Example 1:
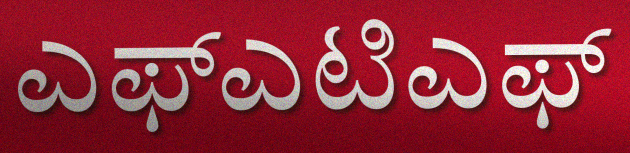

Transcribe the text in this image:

ಎಫ್ಎಟಿಎಫ್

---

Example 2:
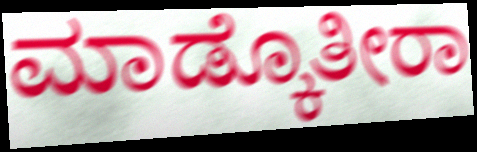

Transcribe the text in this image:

ಮಾಡ್ಕೊತೀರಾ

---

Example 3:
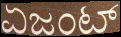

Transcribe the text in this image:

ಏಜಂಟ್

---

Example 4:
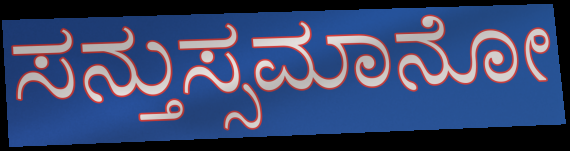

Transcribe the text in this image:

ಸನ್ತುಸ್ಸಮಾನೋ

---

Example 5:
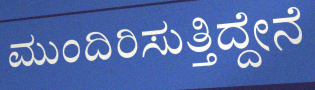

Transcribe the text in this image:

ಮುಂದಿರಿಸುತ್ತಿದ್ದೇನೆ